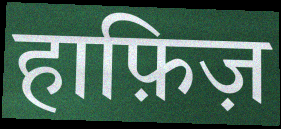
हाफ़िज़